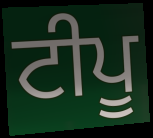
ਟੀਪੂ